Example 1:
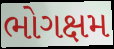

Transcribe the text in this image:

ભોગક્ષમ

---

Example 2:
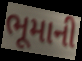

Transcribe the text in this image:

ભૂમાની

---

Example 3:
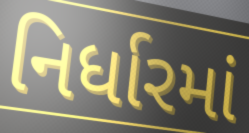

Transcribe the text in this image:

નિર્ધારમાં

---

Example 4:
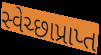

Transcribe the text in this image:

સ્વેચ્છાપ્રાપ્ત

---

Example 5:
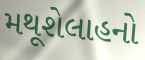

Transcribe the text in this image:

મથૂશેલાહનો